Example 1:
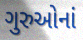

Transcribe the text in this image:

ગુરુઓનાં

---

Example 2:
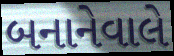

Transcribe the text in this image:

બનાનેવાલે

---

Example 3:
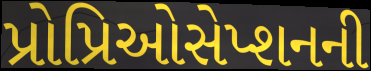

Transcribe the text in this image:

પ્રોપ્રિઓસેપ્શનની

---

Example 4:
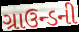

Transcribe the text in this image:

ગ્રાઉન્ડની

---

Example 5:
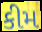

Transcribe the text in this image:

કીમ